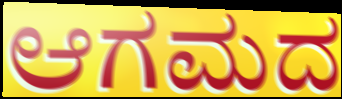
ಆಗಮದ